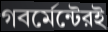
গবর্মেন্টেরই